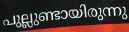
പുല്ലുണ്ടായിരുന്നു